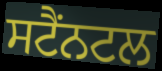
ਸਟੈਂਨਟਲ